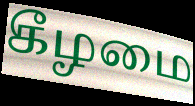
கீழமை